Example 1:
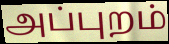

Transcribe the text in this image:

அப்புறம்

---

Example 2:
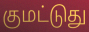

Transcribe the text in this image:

குமட்டுது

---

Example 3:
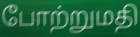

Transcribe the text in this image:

போற்றுமதி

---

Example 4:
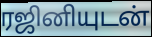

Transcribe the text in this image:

ரஜினியுடன்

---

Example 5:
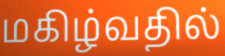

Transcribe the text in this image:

மகிழ்வதில்